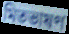
মিতভাষণ